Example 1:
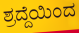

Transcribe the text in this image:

ಶ್ರದ್ದೆಯಿಂದ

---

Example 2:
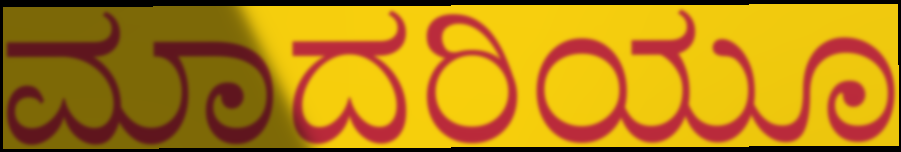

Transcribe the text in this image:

ಮಾದರಿಯೂ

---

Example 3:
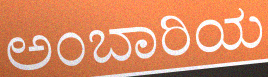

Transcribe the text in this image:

ಅಂಬಾರಿಯ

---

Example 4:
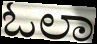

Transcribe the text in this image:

ಓಲಾ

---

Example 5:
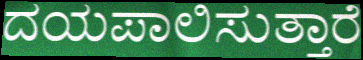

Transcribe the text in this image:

ದಯಪಾಲಿಸುತ್ತಾರೆ